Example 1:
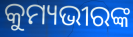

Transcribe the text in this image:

କୁମ୍ୟଭୀରଙ୍କ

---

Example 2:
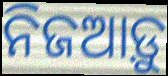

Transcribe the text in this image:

ନିଜଆଡ଼ୁ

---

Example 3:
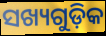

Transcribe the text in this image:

ସଖ୍ୟଗୁଡ଼ିକ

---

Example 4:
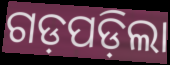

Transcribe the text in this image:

ଗଡ଼ପଡ଼ିଲା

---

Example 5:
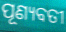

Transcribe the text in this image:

ପୂଣ୍ୟବତୀ